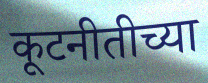
कूटनीतीच्या